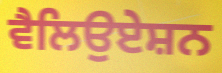
ਵੈਲਿਉਏਸ਼ਨ